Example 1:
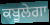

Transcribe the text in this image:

ਕਬੂਲੇਗਾ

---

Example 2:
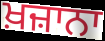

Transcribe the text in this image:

ਖ਼ਜ਼ਾਨਾ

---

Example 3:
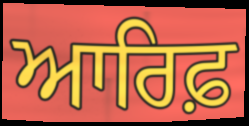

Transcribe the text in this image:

ਆਰਿਫ਼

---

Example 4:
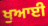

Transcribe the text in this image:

ਖੁਆਈ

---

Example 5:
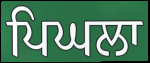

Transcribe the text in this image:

ਪਿਘਲਾ